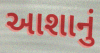
આશાનું